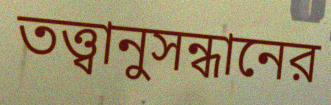
তত্ত্বানুসন্ধানের